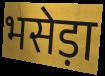
भसेड़ा